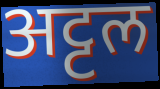
अट्टल